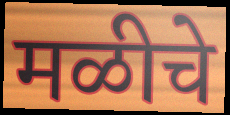
मळीचे